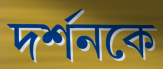
দর্শনকে